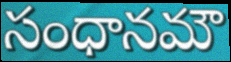
సంధానమౌ